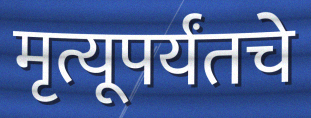
मृत्यूपर्यंतचे